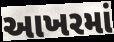
આખરમાં